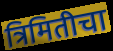
त्रिमितीचा